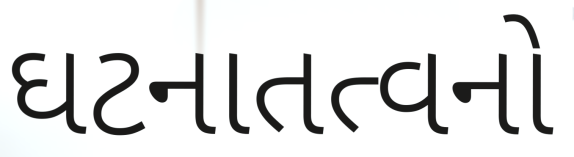
ઘટનાતત્વનો